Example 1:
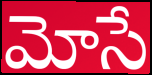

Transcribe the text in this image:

మోసే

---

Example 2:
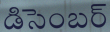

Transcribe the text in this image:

డిసెంబర్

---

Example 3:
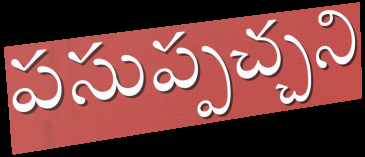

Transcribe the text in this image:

పసుప్పచ్చని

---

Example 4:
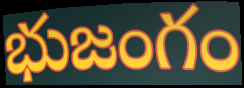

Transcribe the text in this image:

భుజంగం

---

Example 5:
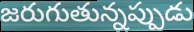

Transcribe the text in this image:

జరుగుతున్నప్పుడు